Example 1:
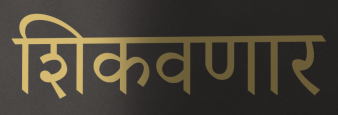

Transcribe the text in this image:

शिकवणार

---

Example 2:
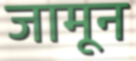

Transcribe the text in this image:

जामून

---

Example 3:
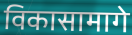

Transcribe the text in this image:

विकासामागे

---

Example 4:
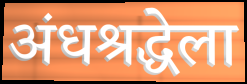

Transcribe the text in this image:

अंधश्रद्धेला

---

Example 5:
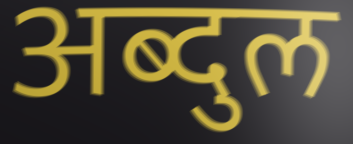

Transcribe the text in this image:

अब्दुल